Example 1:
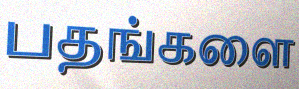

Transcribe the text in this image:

பதங்களை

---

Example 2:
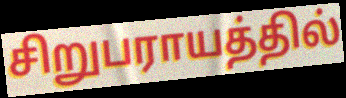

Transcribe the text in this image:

சிறுபராயத்தில்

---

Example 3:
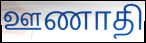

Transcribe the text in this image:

ஊணாதி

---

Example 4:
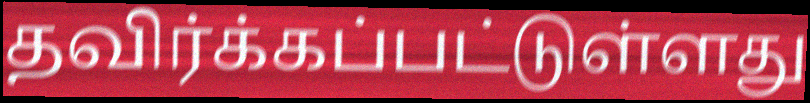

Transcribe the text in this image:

தவிர்க்கப்பட்டுள்ளது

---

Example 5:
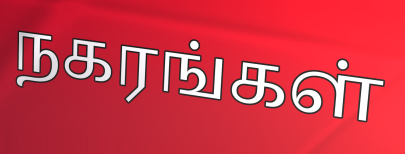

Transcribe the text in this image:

நகரங்கள்